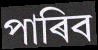
পাৰিব